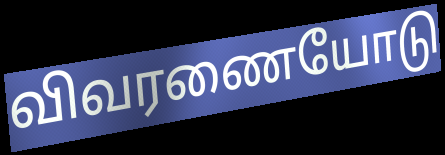
விவரணையோடு